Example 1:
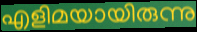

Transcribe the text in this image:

എളിമയായിരുന്നു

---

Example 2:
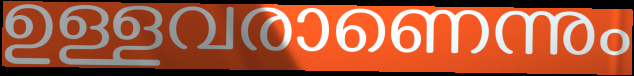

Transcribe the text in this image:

ഉള്ളവരാണെന്നും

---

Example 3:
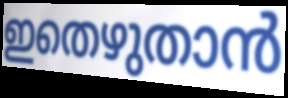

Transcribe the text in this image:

ഇതെഴുതാൻ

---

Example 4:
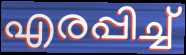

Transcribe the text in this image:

എരപ്പിച്ച്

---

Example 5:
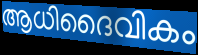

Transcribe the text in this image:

ആധിദൈവികം